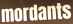
mordants